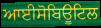
ਆਈਸੋਬਿਊਟਿਲ